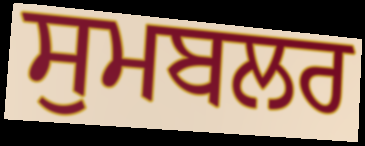
ਸੁਮਬਲਰ